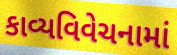
કાવ્યવિવેચનામાં